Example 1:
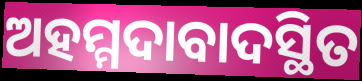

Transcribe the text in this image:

ଅହମ୍ମଦାବାଦସ୍ଥିତ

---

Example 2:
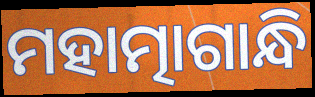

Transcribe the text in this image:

ମହାତ୍ମାଗାନ୍ଧି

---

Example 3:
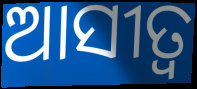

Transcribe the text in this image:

ଆସୀତ୍ବ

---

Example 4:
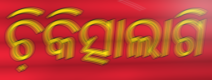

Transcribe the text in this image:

ଚ଼ିକିତ୍ସାଲାଗି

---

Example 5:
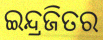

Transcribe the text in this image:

ଇନ୍ଦ୍ରଜିତର